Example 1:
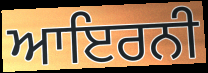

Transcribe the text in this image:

ਆਇਰਨੀ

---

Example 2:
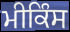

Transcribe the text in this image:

ਮੀਕਿੰਸ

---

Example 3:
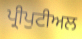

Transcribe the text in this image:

ਪ੍ਰੀਪੁਟੀਅਲ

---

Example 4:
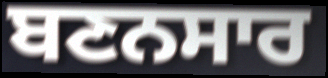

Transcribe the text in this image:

ਬਣਨਸਾਰ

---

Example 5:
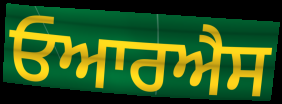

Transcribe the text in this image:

ਓਆਰਐਸ